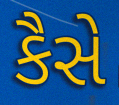
કૈસે